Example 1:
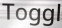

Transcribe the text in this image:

Toggl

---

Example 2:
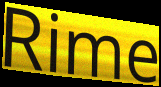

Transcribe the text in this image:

Rime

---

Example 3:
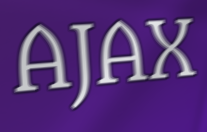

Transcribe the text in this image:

AJAX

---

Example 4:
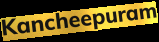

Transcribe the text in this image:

Kancheepuram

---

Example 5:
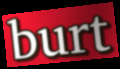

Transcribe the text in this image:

burt